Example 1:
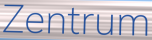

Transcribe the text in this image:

Zentrum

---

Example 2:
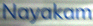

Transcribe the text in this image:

Nayakam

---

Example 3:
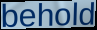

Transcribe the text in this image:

behold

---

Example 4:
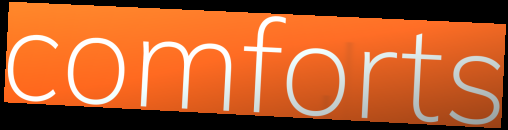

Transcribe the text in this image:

comforts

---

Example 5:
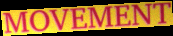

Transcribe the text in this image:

MOVEMENT